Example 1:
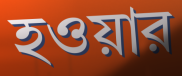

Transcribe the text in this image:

হওয়ার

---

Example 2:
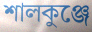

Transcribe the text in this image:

শালকুঞ্জে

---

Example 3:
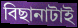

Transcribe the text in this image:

বিছানাটাই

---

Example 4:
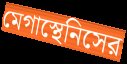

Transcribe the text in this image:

মেগাস্থেনিসের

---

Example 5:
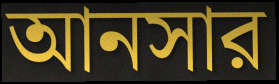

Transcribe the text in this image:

আনসার